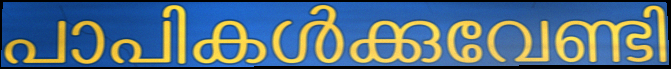
പാപികൾക്കുവേണ്ടി